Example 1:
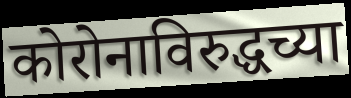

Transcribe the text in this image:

कोरोनाविरुद्धच्या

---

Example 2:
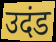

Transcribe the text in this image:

उदंड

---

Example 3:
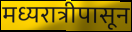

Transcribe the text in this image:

मध्यरात्रीपासून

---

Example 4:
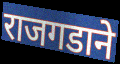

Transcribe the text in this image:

राजगडाने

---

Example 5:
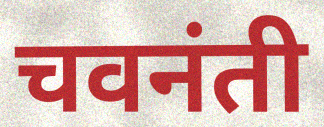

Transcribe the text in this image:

चवनंती